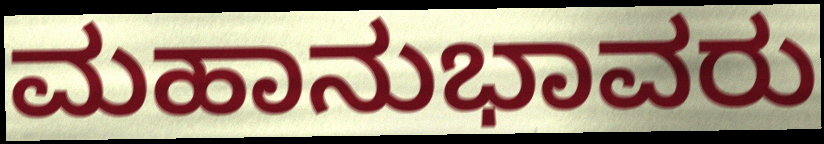
ಮಹಾನುಭಾವರು